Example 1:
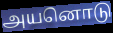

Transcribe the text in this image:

அயனொடு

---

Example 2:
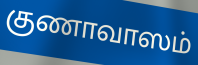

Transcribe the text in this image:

குணாவாஸம்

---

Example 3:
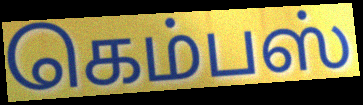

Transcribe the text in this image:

கெம்பஸ்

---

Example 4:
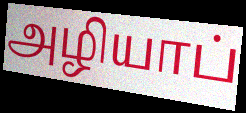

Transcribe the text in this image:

அழியாப்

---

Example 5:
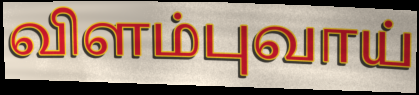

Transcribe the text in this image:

விளம்புவாய்